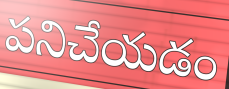
పనిచేయడం